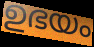
ഉഭയം